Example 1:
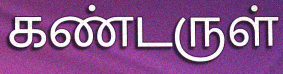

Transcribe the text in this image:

கண்டருள்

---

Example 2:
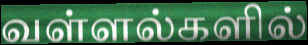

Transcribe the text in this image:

வள்ளல்களில்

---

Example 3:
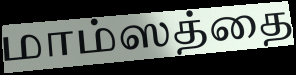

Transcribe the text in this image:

மாம்ஸத்தை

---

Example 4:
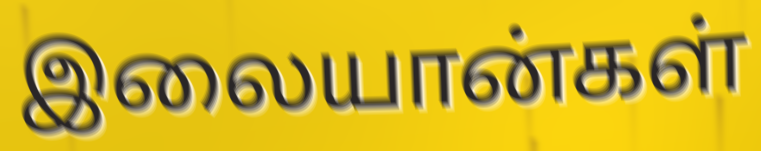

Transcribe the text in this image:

இலையான்கள்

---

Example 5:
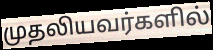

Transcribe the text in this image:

முதலியவர்களில்